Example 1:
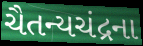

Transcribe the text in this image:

ચૈતન્યચંદ્રના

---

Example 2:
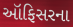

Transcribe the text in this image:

ઑફિસરના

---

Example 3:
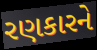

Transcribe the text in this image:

રણકારને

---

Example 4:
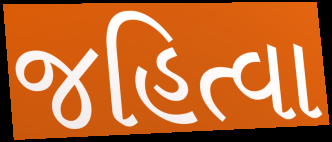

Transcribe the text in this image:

જહિત્વા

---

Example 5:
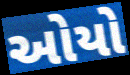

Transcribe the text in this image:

ઓયો